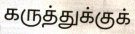
கருத்துக்குக்